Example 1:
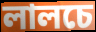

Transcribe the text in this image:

লালচে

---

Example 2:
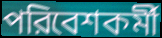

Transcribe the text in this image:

পরিবেশকর্মী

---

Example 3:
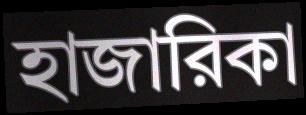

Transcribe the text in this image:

হাজারিকা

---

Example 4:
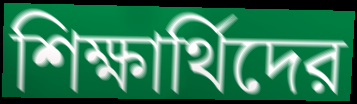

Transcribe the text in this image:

শিক্ষার্থিদের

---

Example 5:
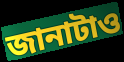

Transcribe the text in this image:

জানাটাও